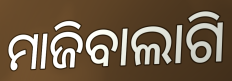
ମାଜିବାଲାଗି